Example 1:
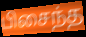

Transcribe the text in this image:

பிசைந்த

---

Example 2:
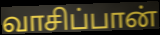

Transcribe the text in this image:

வாசிப்பான்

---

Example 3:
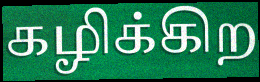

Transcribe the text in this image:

கழிக்கிற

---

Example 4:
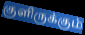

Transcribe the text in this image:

குளிருக்கும்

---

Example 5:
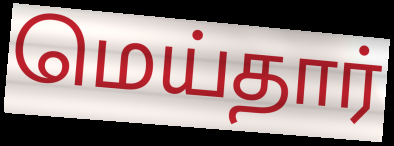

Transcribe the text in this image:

மெய்தார்